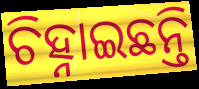
ଚିହ୍ନାଇଛନ୍ତି